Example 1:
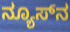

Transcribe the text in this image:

ನ್ಯೂಸ್‌ನ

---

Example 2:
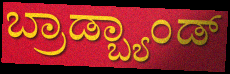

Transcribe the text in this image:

ಬ್ರಾಡ್ಬ್ಯಾಂಡ್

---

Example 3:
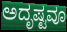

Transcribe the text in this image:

ಅದೃಷ್ಟವೂ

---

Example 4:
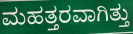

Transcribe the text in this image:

ಮಹತ್ತರವಾಗಿತ್ತು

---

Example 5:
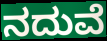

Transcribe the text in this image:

ನದುವೆ